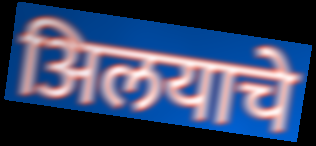
अिलयाचे